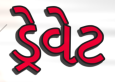
ડ્રેવેટ